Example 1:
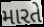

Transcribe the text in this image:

મારતે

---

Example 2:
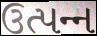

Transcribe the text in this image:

ઉત્પન્‍ન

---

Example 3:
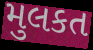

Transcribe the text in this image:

મુલકત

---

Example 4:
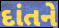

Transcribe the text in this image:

દાંતને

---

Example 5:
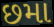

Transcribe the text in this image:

છમા